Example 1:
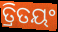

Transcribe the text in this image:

ତ୍ରିତୟଂ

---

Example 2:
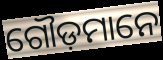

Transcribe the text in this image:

ଗୌଡ଼ମାନେ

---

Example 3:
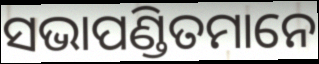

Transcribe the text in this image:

ସଭାପଣ୍ଡିତମାନେ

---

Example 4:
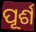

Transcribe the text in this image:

ପୂର୍ଶ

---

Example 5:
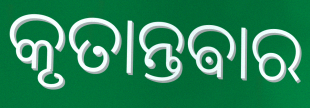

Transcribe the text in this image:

କୃତାନ୍ତଵାର